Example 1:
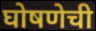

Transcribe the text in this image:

घोषणेची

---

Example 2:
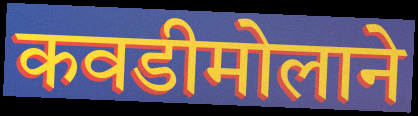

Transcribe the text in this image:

कवडीमोलाने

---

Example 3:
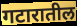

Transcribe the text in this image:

गटारातील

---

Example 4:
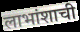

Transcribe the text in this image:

लाभांशाची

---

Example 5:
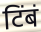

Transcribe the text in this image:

टिंबं